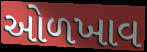
ઓળખાવ